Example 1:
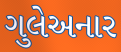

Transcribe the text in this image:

ગુલેઅનાર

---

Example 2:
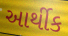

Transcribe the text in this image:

આર્થીક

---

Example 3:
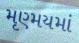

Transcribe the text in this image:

મૃણ્મયમાં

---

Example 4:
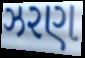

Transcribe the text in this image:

ઝરણ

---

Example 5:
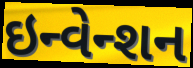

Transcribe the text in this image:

ઇન્વેન્શન